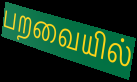
பறவையில்